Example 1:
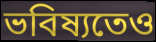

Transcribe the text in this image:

ভবিষ্যতেও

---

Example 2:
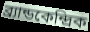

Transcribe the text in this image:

ব্র্যান্ডকেন্দ্রিক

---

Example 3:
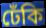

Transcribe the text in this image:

ঢেঁকি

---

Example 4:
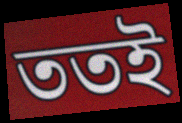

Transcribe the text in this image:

ততই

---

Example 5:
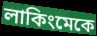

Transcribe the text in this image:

লাকিংমেকে